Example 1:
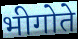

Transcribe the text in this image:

भीगोते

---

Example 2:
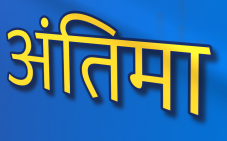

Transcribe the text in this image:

अंतिमा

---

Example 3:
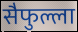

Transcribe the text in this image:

सैफुल्ला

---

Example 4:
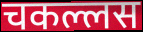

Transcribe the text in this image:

चकल्लस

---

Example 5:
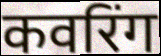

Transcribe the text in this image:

कवरिंग